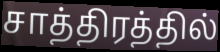
சாத்திரத்தில்